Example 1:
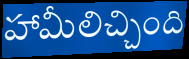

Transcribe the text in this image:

హామీలిచ్చింది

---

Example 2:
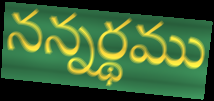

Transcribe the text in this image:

నన్నర్థము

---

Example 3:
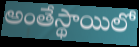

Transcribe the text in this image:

అంతేస్థాయిలో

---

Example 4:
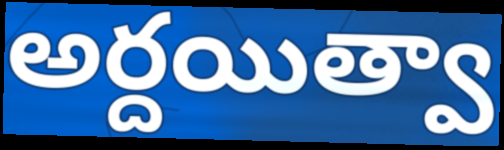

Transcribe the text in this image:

అర్దయిత్వా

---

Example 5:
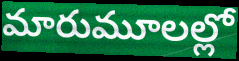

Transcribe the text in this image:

మారుమూలల్లో